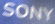
SONY